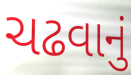
ચઢવાનું